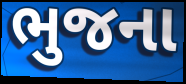
ભુજના